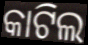
କାଟିଲ